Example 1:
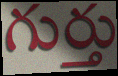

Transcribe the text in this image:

గుర్తు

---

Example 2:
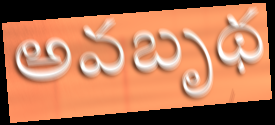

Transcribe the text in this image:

అవబృథ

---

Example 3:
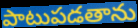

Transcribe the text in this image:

పాటుపడతాను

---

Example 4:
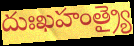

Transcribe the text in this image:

దుఃఖహంత్ర్యై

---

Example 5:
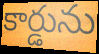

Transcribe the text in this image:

కార్డును